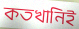
কতখানিই